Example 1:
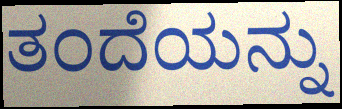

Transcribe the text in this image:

ತಂದೆಯನ್ನು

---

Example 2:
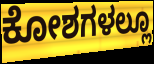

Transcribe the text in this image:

ಕೋಶಗಳಲ್ಲೂ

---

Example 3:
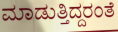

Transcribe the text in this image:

ಮಾಡುತ್ತಿದ್ದರಂತೆ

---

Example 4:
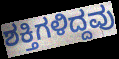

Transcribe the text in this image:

ಶಕ್ತಿಗಳಿದ್ದವು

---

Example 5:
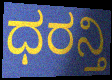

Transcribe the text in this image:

ಧರನ್ತಿ